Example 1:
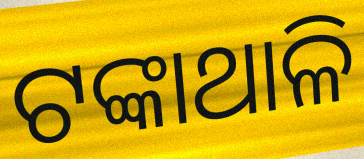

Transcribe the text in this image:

ଟଙ୍କାଥାଳି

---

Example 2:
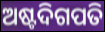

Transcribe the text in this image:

ଅଷ୍ଟଦିଗପତି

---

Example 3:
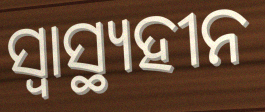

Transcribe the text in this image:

ସ୍ୱାସ୍ଥ୍ୟହୀନ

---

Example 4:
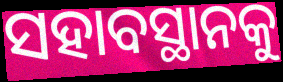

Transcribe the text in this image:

ସହାବସ୍ଥାନକୁ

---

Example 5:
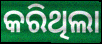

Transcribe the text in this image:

କରିଥିଲା